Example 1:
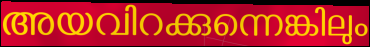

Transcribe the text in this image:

അയവിറക്കുന്നെങ്കിലും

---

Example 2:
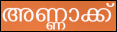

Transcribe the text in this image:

അണ്ണാക്ക്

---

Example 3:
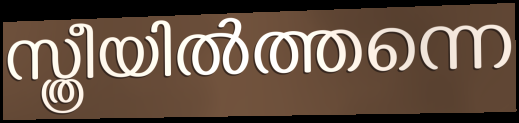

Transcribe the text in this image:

സ്ത്രീയിൽത്തന്നെ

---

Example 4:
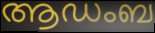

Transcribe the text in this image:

ആഡംബ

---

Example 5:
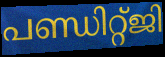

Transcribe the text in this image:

പണ്ഡിറ്റ്ജി